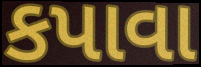
કપાવા